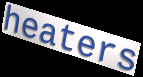
heaters